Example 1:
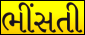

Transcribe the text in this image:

ભીંસતી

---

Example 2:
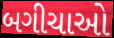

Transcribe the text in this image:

બગીચાઓ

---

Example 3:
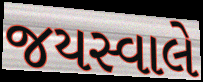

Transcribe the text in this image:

જયસ્વાલે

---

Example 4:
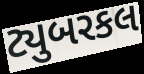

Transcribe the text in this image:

ટ્યુબરકલ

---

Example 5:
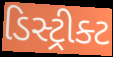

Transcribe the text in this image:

ડિસ્ટ્રીક્ટ